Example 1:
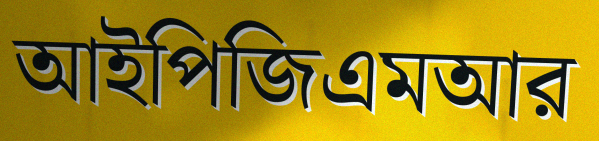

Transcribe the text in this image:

আইপিজিএমআর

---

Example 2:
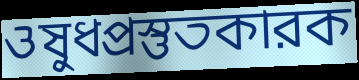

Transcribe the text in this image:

ওষুধপ্রস্তুতকারক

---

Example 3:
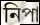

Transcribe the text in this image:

নিপা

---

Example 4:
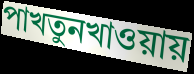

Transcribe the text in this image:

পাখতুনখাওয়ায়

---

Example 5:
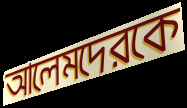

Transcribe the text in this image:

আলেমদেরকে